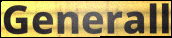
Generall